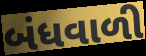
બંધવાળી